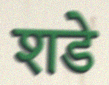
शडे